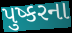
પુષ્કરના